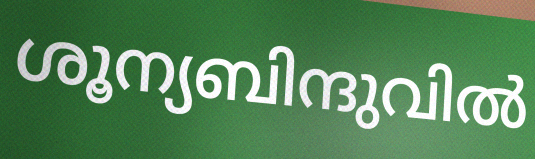
ശൂന്യബിന്ദുവിൽ